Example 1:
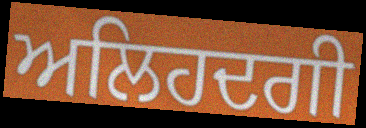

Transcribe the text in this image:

ਅਲਿਹਦਗੀ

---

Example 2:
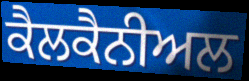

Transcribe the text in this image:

ਕੈਲਕੈਨੀਅਲ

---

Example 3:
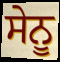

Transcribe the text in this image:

ਸੇਨੂ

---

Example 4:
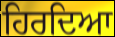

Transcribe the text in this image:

ਹਿਰਦਿਆ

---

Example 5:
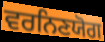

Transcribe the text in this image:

ਵਰਨਿਣਯੋਗ